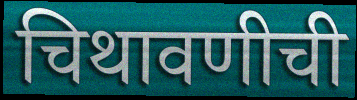
चिथावणीची